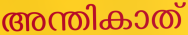
അന്തികാത്